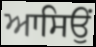
ਆਸਿਉਂ